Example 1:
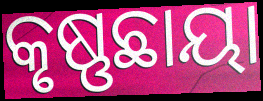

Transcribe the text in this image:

କୃଷ୍ଣଛାୟା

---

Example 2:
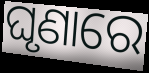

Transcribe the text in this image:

ଘୃଣାରେ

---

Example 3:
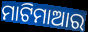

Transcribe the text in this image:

ମାଟିମାଆର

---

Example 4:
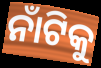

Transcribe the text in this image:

ନାଁଟିକୁ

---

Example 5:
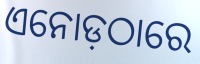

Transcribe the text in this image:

ଏନୋଡ଼ଠାରେ